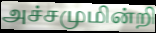
அச்சமுமின்றி